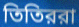
তিতিররা